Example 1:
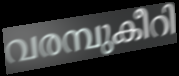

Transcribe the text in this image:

വരമ്പുകീറി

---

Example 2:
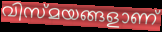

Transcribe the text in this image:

വിസ്മയങ്ങളാണ്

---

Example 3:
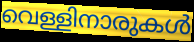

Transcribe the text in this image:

വെള്ളിനാരുകൾ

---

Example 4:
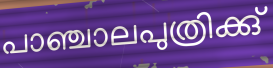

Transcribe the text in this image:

പാഞ്ചാലപുത്രിക്കു്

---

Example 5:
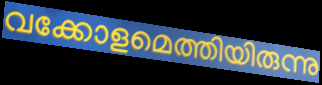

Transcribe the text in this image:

വക്കോളമെത്തിയിരുന്നു